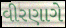
વીરણાગે